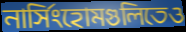
নার্সিংহোমগুলিতেও